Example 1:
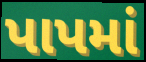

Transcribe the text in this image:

પાપમાં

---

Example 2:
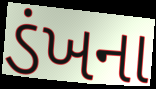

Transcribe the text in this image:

ડંખના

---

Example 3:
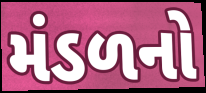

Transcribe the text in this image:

મંડળનો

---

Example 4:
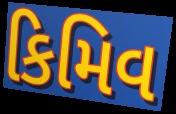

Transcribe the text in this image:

કિમિવ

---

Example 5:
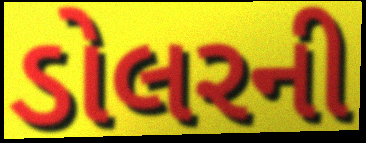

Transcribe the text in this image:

ડોલરની